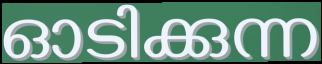
ഓടിക്കുന്ന